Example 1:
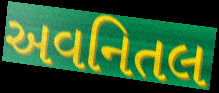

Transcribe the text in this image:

અવનિતલ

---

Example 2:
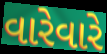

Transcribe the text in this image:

વારેવારે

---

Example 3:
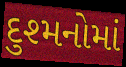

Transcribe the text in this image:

દુશ્મનોમાં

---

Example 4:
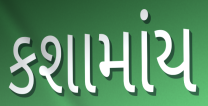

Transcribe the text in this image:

કશામાંય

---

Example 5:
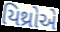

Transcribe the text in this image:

યિથ્રોએ